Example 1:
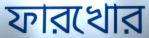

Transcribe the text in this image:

ফারখোর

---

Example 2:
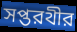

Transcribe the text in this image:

সপ্তরথীর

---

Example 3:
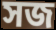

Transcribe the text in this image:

সজ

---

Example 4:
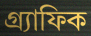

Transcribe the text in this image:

গ্র্যাফিক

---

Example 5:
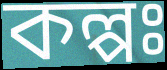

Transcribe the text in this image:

কল্পঃ